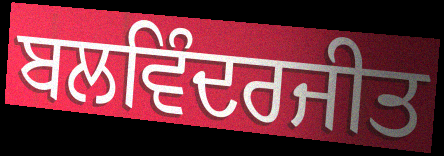
ਬਲਵਿੰਦਰਜੀਤ